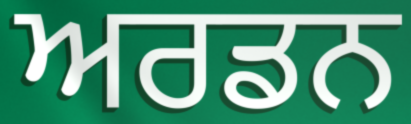
ਅਰਡਨ